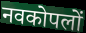
नवकोपलों